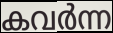
കവർന്ന